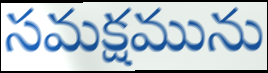
సమక్షమును